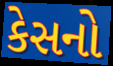
કેસનો